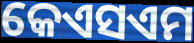
କେଏସଏମ